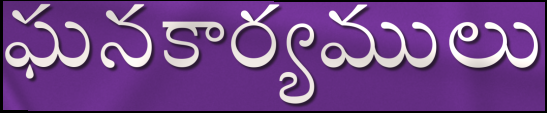
ఘనకార్యములు